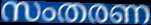
സംതരണ